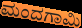
ಮಂದಗಾಮಿ